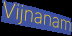
Vijnanam